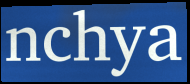
nchya